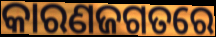
କାରଣଜଗତରେ